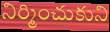
నిర్మించుకుని